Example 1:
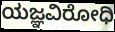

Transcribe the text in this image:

ಯಜ್ಞವಿರೋಧಿ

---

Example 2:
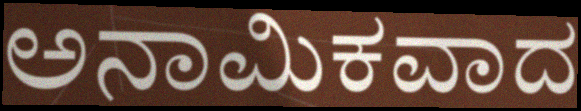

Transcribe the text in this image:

ಅನಾಮಿಕವಾದ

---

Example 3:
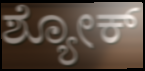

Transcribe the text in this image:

ಶ್ಯೋಕ್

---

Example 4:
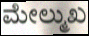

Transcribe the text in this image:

ಮೇಲ್ಮುಖ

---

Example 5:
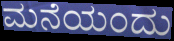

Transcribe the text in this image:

ಮನೆಯಂದು